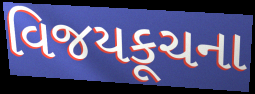
વિજયકૂચના